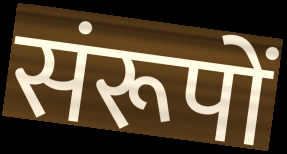
संरूपों